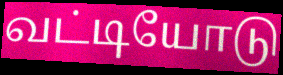
வட்டியோடு